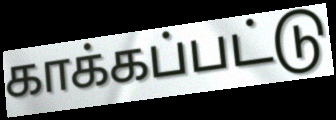
காக்கப்பட்டு